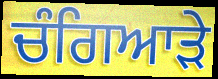
ਚੰਗਿਆੜੇ